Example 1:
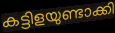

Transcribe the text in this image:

കട്ടിളയുണ്ടാക്കി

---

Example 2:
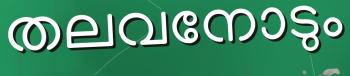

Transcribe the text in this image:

തലവനോടും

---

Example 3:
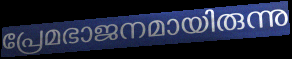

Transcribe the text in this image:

പ്രേമഭാജനമായിരുന്നു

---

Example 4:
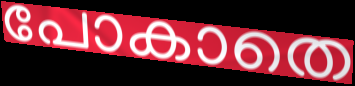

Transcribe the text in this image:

പോകാതെ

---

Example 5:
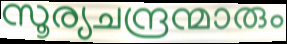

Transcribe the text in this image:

സൂര്യചന്ദ്രന്മാരും